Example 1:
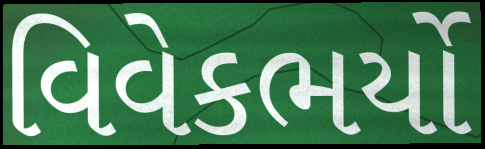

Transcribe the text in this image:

વિવેકભર્યો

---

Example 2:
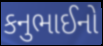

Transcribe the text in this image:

કનુભાઈનો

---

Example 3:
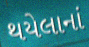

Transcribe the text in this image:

થયેલાનાં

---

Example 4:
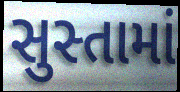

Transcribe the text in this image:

સુસ્તામાં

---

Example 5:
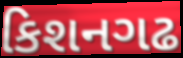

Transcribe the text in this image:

કિશનગઢ